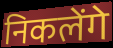
निकलेंगे